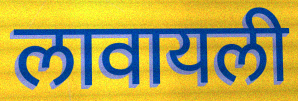
लावायली